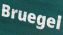
Bruegel